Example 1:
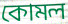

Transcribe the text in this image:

কোমল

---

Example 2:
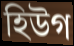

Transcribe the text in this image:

হিউগ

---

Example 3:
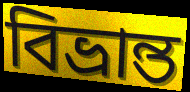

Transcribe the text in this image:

বিভ্ৰান্ত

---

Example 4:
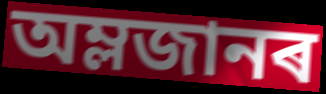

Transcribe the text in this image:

অম্লজানৰ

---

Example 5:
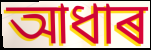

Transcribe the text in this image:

আধাৰ